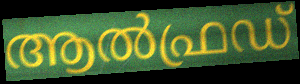
ആൽഫ്രഡ്